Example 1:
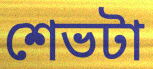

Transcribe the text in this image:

শেভটা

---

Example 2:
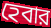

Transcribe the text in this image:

হেবার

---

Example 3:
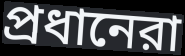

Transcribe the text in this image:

প্রধানেরা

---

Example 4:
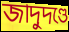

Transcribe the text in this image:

জাদুদণ্ডে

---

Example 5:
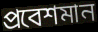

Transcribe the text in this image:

প্রবেশমান